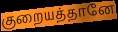
குறையத்தானே